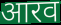
आरव